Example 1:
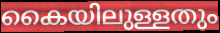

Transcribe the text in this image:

കൈയിലുള്ളതും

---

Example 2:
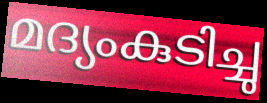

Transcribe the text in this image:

മദ്യംകുടിച്ചു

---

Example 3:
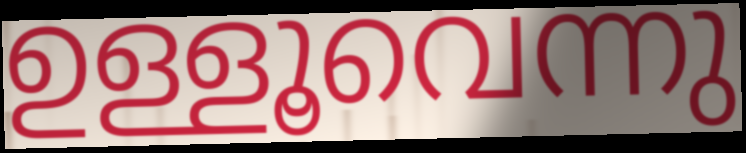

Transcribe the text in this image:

ഉള്ളൂവെന്നു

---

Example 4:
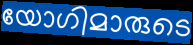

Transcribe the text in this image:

യോഗിമാരുടെ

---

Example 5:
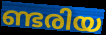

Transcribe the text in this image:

ണ്ടരിയ